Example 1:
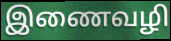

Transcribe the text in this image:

இணைவழி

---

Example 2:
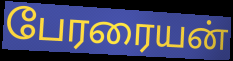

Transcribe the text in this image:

பேரரையன்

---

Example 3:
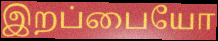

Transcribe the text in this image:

இறப்பையோ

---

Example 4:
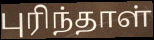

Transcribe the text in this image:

புரிந்தாள்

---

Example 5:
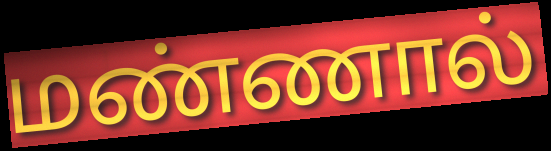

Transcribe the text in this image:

மண்ணால்